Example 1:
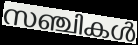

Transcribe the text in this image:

സഞ്ചികൾ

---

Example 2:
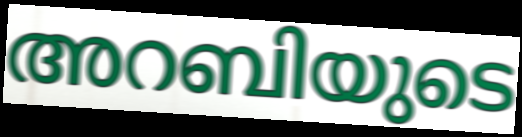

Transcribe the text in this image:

അറബിയുടെ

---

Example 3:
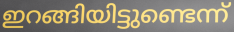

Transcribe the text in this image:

ഇറങ്ങിയിട്ടുണ്ടെന്ന്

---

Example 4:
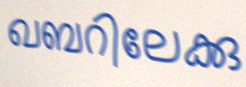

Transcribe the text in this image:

ഖബറിലേക്കു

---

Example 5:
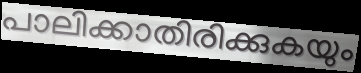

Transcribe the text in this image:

പാലിക്കാതിരിക്കുകയും